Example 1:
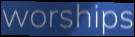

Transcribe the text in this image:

worships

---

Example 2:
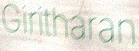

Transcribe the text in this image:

Giritharan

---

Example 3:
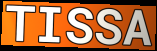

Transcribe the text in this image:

TISSA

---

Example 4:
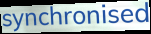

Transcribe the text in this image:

synchronised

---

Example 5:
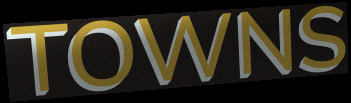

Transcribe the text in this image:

TOWNS